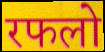
रफलो